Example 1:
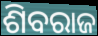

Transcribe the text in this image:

ଶିବରାଜ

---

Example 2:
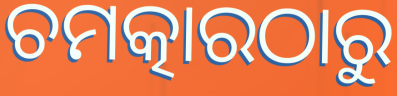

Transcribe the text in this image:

ଚମତ୍କାରଠାରୁ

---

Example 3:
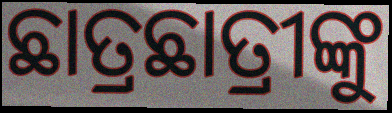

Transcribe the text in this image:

ଛାତ୍ରଛାତ୍ରୀଙ୍କୁ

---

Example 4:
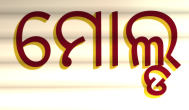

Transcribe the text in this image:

ମୋଲ୍ଡ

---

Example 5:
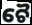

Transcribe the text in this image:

ଚୈ